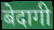
बेदागी